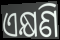
ଏକ୍ଷଣି